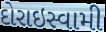
દોરાઇસ્વામી